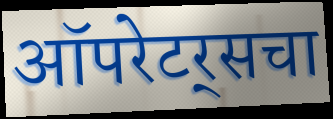
ऑपरेटर्सचा